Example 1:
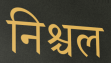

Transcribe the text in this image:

निश्चल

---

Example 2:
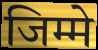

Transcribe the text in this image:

जिम्मे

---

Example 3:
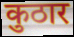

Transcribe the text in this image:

कुठार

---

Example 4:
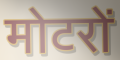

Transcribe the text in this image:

मोटरों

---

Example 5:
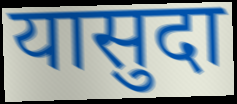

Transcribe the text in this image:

यासुदा